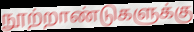
நூற்றாண்டுகளுக்கு